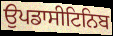
ਉਪਡਾਸੀਟਿਨਿਬ